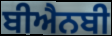
ਬੀਐਨਬੀ